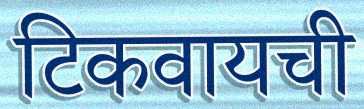
टिकवायची